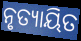
ନୃତ୍ୟାୟିତ